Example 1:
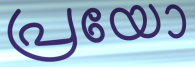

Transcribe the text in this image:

പ്രയോ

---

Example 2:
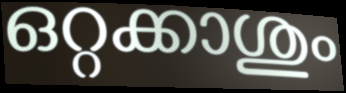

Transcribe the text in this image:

ഒറ്റക്കാശും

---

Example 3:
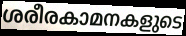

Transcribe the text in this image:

ശരീരകാമനകളുടെ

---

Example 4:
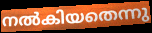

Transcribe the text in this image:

നൽകിയതെന്നു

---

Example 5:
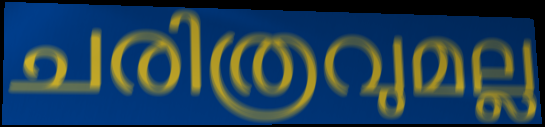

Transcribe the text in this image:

ചരിത്രവുമല്ല